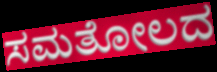
ಸಮತೋಲದ